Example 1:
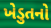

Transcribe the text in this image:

ખેડુતનો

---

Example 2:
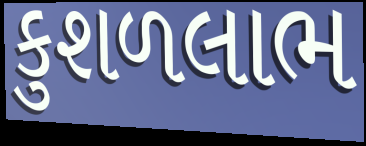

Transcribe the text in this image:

કુશળલાભ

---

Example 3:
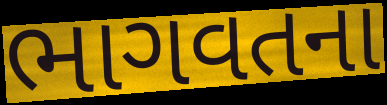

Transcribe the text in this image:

ભાગવતના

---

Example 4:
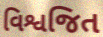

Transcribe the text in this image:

વિશ્વજિત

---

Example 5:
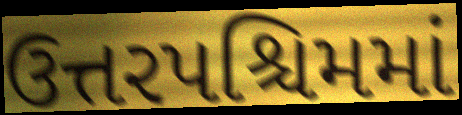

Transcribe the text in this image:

ઉત્તરપશ્ચિમમાં